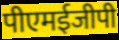
पीएमईजीपी